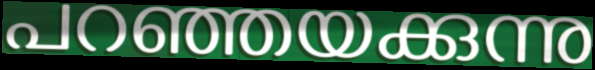
പറഞ്ഞയക്കുന്നു